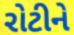
રોટીને